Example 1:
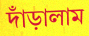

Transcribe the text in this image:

দাঁড়ালাম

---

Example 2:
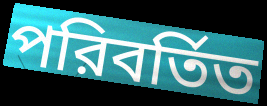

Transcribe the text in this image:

পরিবর্তিত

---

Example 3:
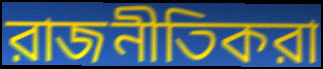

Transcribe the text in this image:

রাজনীতিকরা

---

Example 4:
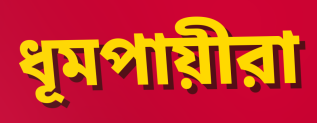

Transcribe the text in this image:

ধূমপায়ীরা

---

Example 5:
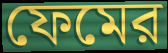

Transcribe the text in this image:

ফেমের